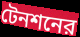
টেনশনের